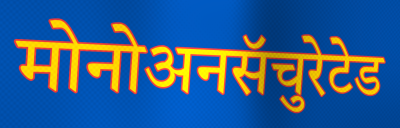
मोनोअनसॅचुरेटेड